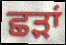
ਛੜਾਂ